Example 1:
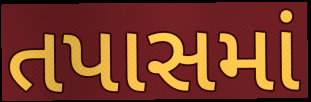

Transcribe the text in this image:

તપાસમાં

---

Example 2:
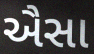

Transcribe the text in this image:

ઐસા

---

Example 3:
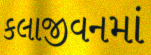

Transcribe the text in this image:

કલાજીવનમાં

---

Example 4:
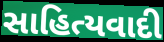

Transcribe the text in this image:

સાહિત્યવાદી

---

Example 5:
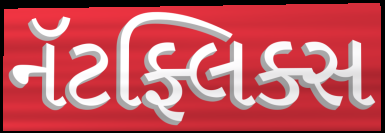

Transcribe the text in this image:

નૅટફ્લિક્સ